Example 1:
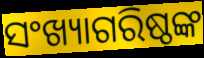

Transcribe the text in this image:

ସଂଖ୍ୟାଗରିଷ୍ଠଙ୍କ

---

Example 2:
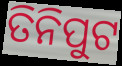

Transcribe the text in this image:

ତିନିପୁଟ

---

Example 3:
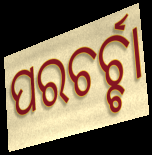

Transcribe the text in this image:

ପରଚର୍ଚ୍ଚା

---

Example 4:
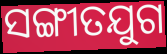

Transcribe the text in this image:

ସଙ୍ଗୀତଯୁଗ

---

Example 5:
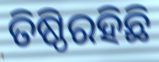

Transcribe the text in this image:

ତିଷ୍ଠିରହିଛି